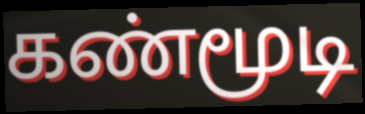
கண்மூடி